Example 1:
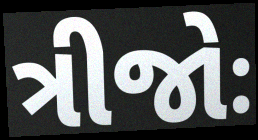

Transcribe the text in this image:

ત્રીજોઃ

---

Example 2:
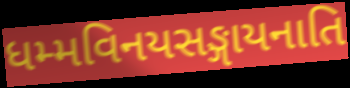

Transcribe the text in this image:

ધમ્મવિનયસઙ્ગાયનાતિ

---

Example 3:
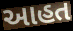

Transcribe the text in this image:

આહત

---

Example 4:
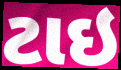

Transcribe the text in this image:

ટાઇ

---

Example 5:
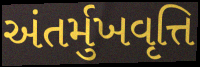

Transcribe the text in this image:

અંતર્મુખવૃત્તિ